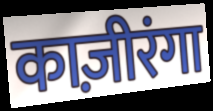
काज़ीरंगा